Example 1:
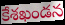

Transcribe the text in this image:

కేశఖండన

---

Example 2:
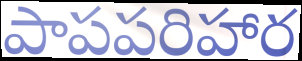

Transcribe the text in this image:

పాపపరిహార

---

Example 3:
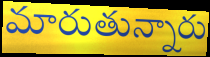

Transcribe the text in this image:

మారుతున్నారు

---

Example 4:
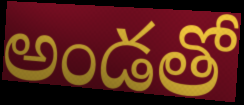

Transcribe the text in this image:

అండతో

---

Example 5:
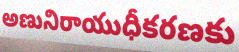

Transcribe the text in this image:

అణునిరాయుధీకరణకు